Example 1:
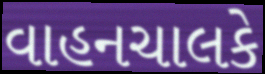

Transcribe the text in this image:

વાહનચાલકે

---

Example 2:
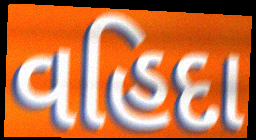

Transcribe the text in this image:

વહિદા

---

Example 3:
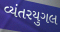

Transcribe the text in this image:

વ્યંતરયુગલ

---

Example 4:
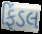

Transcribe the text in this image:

ફિંડલ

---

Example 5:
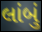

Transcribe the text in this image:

લાંબું